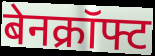
बेनक्रॉफ्ट